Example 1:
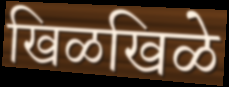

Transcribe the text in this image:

खिळखिळे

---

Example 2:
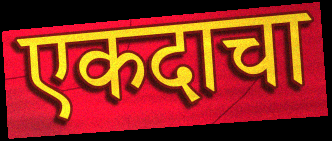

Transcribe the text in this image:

एकदाचा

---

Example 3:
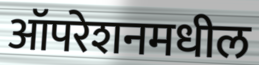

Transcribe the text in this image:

ऑपरेशनमधील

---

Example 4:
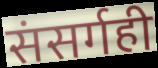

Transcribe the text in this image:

संसर्गही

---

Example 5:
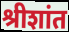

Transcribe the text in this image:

श्रीशांत